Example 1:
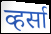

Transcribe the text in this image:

व्हर्सा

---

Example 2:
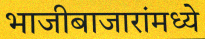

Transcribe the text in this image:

भाजीबाजारांमध्ये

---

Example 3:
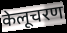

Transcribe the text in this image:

केलूचरण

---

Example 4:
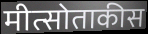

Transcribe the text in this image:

मीत्सोताकीस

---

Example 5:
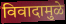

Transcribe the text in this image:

विवादामुळे